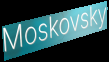
Moskovsky